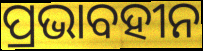
ପ୍ରଭାବହୀନ